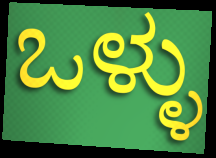
ಒಳ್ಳು